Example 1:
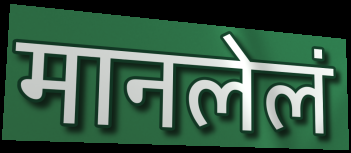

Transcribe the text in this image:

मानलेलं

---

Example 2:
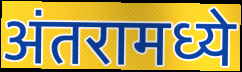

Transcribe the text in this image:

अंतरामध्ये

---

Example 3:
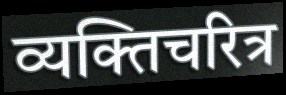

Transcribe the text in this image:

व्यक्तिचरित्र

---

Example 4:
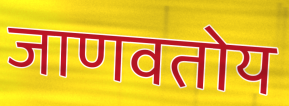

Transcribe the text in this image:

जाणवतोय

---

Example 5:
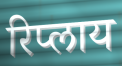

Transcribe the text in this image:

रिप्लाय